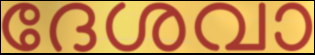
ദേശവാ